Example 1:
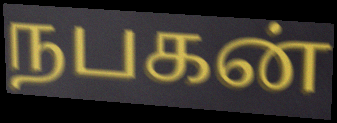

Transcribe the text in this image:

நபகன்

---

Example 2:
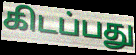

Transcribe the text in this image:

கிடப்பது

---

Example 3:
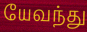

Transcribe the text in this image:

யேவந்து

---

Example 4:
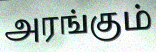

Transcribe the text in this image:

அரங்கும்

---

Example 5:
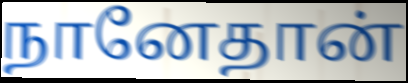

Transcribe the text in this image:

நானேதான்